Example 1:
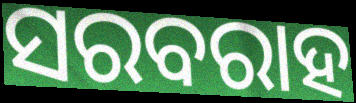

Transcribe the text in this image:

ସରବରାହ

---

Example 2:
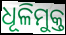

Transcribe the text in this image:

ଧୂଳିମୁକ୍ତ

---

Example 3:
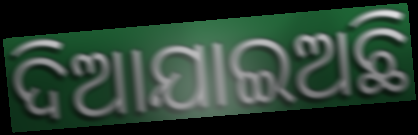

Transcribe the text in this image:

ଦିଆଯାଇଅଛି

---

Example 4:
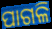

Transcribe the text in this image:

ପାଗଳି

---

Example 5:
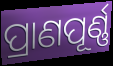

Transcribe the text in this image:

ପ୍ରାଣପୂର୍ଣ୍ଣ